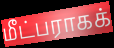
மீட்பராகக்